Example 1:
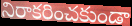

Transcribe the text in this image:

నిరాకరించకుండా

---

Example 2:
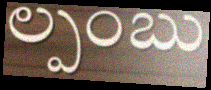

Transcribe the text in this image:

ల్పంబు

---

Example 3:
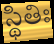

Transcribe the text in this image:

స్థితిః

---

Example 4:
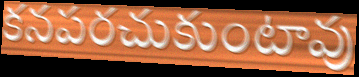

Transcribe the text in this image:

కనపరచుకుంటావు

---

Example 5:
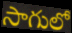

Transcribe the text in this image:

సాగులో